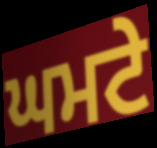
ਘਮਟੇ